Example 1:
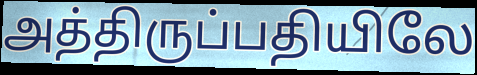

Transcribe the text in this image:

அத்திருப்பதியிலே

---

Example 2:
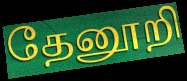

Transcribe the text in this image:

தேனூறி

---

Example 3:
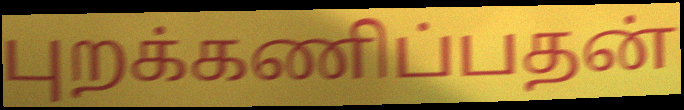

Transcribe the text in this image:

புறக்கணிப்பதன்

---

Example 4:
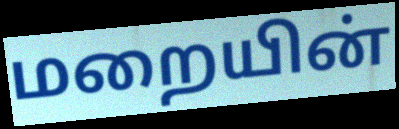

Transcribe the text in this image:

மறையின்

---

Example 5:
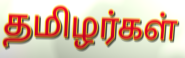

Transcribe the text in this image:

தமிழர்கள்